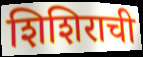
शिशिराची